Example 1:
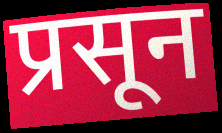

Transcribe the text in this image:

प्रसून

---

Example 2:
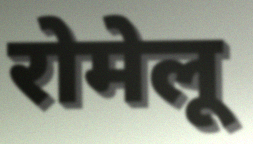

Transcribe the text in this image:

रोमेलू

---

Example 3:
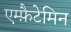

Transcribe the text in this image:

एम्फ़ैटेमिन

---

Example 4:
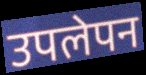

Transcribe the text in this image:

उपलेपन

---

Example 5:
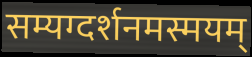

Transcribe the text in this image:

सम्यग्दर्शनमस्मयम्